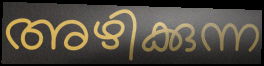
അഴിക്കുന്ന